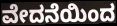
ವೇದನೆಯಿಂದ